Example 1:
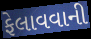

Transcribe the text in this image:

ફેલાવવાની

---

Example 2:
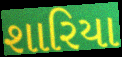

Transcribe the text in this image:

શારિયા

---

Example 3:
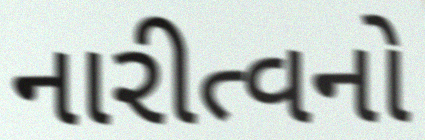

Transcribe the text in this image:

નારીત્વનો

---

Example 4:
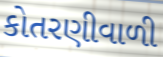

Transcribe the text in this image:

કોતરણીવાળી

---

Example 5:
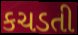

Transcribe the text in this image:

કચડતી